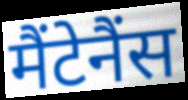
मैंटेनैंस